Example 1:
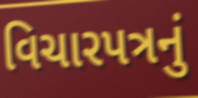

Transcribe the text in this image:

વિચારપત્રનું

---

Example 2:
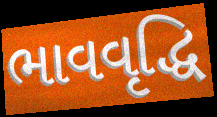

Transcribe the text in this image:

ભાવવૃદ્ધિ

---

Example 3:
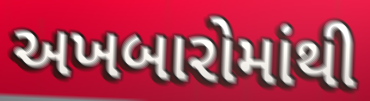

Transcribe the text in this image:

અખબારોમાંથી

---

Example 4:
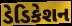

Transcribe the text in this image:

ડેડિકેશન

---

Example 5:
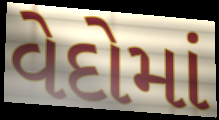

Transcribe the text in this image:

વેદોમાં